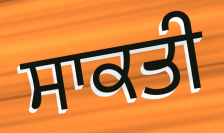
ਸਾਕਤੀ